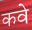
कवे